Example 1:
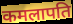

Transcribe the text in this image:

कमलापति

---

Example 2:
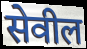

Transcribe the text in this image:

सेवील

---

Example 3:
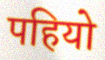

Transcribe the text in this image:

पहियो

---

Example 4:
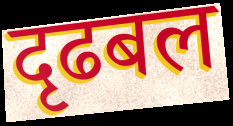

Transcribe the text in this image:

दृढबल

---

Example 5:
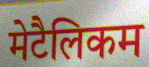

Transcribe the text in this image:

मेटैलिकम